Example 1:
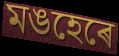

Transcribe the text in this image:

মঙহেৰে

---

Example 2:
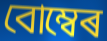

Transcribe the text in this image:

বোম্বেৰ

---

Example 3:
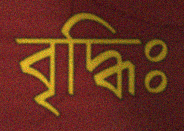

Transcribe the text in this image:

বৃদ্ধিঃ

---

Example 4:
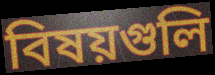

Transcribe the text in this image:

বিষয়গুলি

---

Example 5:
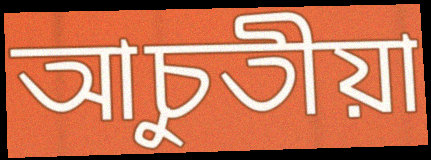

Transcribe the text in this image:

আচুতীয়া